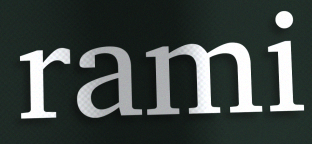
rami